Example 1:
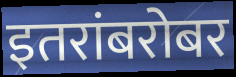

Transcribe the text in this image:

इतरांबरोबर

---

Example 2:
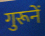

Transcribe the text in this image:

गुरूनें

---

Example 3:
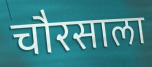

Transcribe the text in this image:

चौरसाला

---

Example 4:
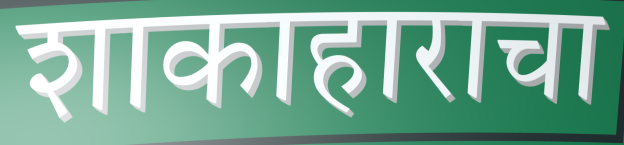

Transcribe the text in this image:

शाकाहाराचा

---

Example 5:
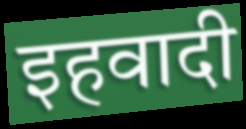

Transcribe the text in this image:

इहवादी